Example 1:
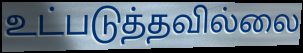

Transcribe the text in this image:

உட்படுத்தவில்லை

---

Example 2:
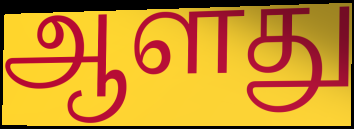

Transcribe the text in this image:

ஆளது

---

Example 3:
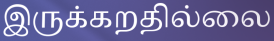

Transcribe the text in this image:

இருக்கறதில்லை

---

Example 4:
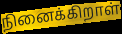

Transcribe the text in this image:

நினைக்கிறாள்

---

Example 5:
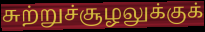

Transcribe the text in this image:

சுற்றுச்சூழலுக்குக்